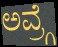
ಅವ್ರ್ಗೆ